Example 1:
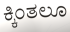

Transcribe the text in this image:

ಕ್ಕಿಂತಲೂ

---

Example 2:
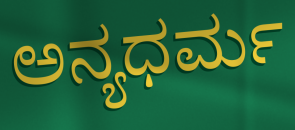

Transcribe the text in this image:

ಅನ್ಯಧರ್ಮ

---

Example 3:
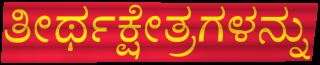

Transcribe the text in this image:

ತೀರ್ಥಕ್ಷೇತ್ರಗಳನ್ನು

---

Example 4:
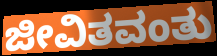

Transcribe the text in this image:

ಜೀವಿತವಂತು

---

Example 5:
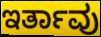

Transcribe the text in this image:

ಇರ್ತಾವು